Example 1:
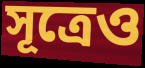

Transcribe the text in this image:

সূত্রেও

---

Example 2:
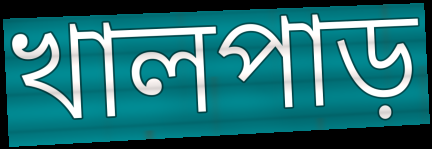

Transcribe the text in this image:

খালপাড়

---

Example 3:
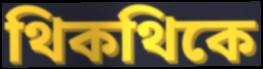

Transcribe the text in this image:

থিকথিকে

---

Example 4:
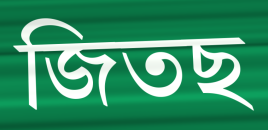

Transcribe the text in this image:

জিতছ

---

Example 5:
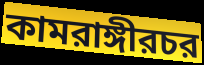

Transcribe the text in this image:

কামরাঙ্গীরচর